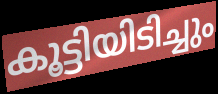
കൂട്ടിയിടിച്ചും